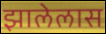
झालेलास